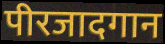
पीरजादगान